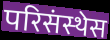
परिसंस्थेस